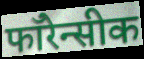
फॉरेन्सीक